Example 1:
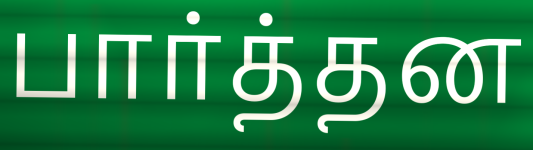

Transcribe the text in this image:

பார்த்தன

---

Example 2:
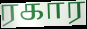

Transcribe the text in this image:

ரகார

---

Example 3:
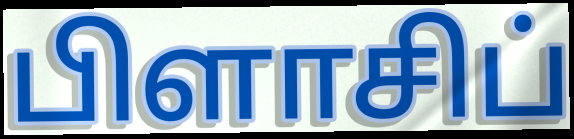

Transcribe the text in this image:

பிளாசிப்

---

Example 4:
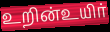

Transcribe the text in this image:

உறின்உயிர்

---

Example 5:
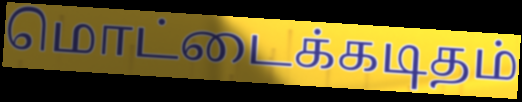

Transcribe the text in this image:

மொட்டைக்கடிதம்